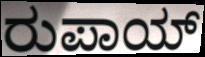
ರುಪಾಯ್